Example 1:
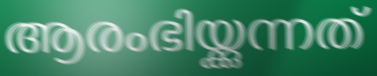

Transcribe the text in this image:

ആരംഭിയ്ക്കുന്നത്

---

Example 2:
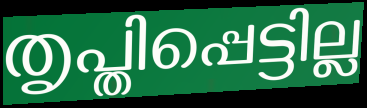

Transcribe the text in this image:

തൃപ്തിപ്പെട്ടില്ല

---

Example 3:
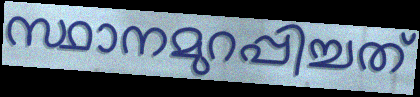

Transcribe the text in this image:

സ്ഥാനമുറപ്പിച്ചത്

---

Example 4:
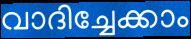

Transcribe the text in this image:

വാദിച്ചേക്കാം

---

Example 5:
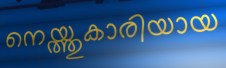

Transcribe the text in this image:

നെയ്ത്തുകാരിയായ